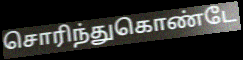
சொரிந்துகொண்டே